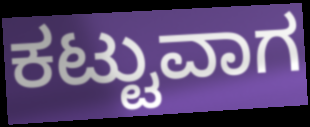
ಕಟ್ಟುವಾಗ